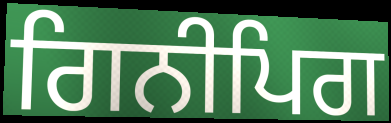
ਗਿਨੀਪਿਗ